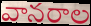
వానరాల